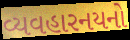
વ્યવહારનયનો